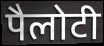
पैलोटी